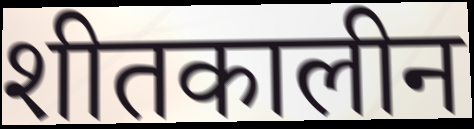
शीतकालीन